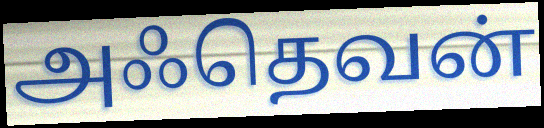
அஃதெவன்